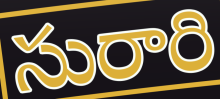
సురారి